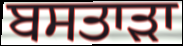
ਬਸਤਾੜਾ